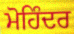
ਮੋਹਿੰਦਰ